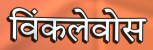
विंकलेवोस